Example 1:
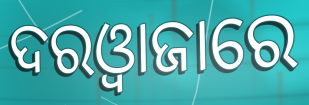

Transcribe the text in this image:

ଦରଓ୍ୱାଜାରେ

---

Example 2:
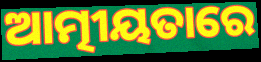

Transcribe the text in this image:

ଆତ୍ମୀୟତାରେ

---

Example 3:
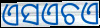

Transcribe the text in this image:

ଏସଏଚଏ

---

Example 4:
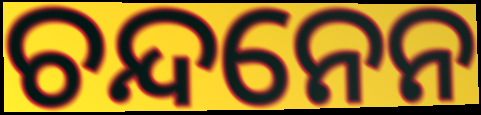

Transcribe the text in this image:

ଚନ୍ଦନେନ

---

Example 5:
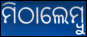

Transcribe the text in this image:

ମିଠାଲେମ୍ବୁ